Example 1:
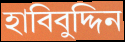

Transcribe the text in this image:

হাবিবুদ্দিন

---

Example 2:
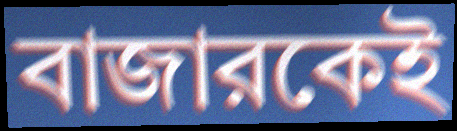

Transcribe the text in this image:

বাজারকেই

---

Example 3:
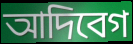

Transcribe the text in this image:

আদিবেগ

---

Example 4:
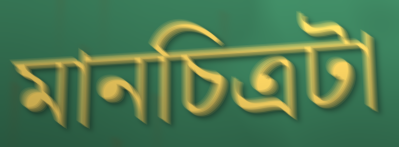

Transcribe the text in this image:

মানচিত্রটা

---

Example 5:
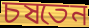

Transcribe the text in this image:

চষতেন